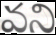
వని